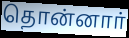
தொன்னார்